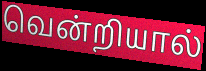
வென்றியால்